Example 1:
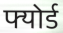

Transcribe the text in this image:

फ्योर्ड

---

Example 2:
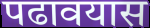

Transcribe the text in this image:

पढावयास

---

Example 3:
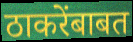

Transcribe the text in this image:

ठाकरेंबाबत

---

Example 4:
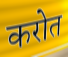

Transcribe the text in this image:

करोत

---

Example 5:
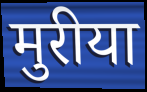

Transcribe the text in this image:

मुरीया